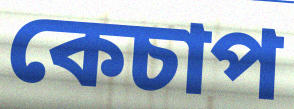
কেচাপ